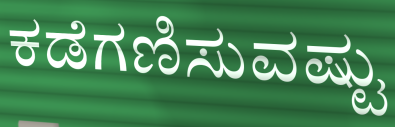
ಕಡೆಗಣಿಸುವಷ್ಟು